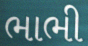
ભાભી